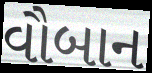
વૌબાન